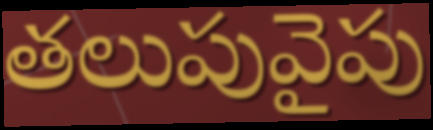
తలుపువైపు